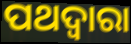
ପଥଦ୍ଵାରା